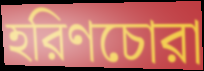
হরিণচোরা